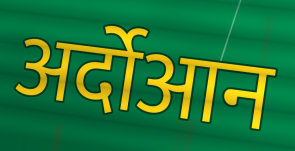
अर्दोआन